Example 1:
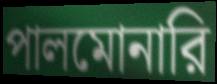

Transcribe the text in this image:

পালমোনারি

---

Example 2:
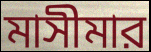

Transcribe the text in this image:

মাসীমার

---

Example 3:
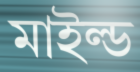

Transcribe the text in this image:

মাইল্ড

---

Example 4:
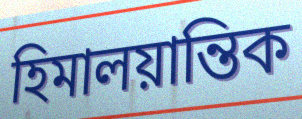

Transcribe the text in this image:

হিমালয়ান্তিক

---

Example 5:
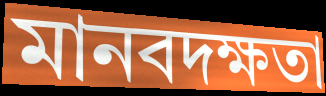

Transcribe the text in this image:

মানবদক্ষতা